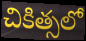
చికిత్సలో